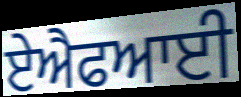
ਏਐਫਆਈ